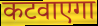
कटवाएगा